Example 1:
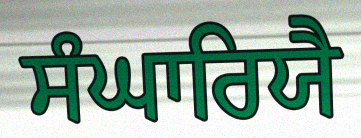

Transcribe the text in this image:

ਸੰਘਾਰਿਯੈ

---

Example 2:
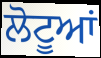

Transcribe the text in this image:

ਲੋਟੂਆਂ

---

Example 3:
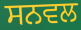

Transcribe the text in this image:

ਸਨਵਲ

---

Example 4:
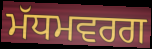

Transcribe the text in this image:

ਮੱਧਮਵਰਗ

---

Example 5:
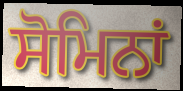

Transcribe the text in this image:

ਸੋਮਿਨਾਂ